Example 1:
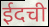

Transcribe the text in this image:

ईदची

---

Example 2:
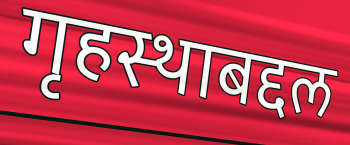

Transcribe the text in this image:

गृहस्थाबद्दल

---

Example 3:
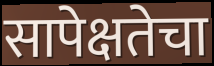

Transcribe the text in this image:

सापेक्षतेचा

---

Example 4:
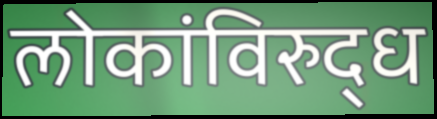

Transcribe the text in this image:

लोकांविरुद्ध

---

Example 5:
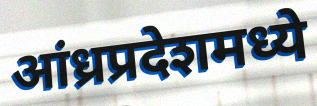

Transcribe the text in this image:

आंध्रप्रदेशमध्ये